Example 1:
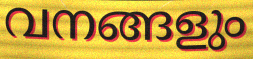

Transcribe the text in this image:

വനങ്ങളും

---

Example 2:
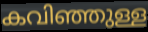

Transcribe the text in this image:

കവിഞ്ഞുള്ള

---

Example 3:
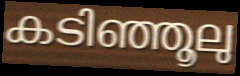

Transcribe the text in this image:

കടിഞ്ഞൂലു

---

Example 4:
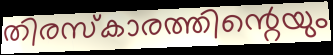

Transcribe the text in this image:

തിരസ്കാരത്തിന്റെയും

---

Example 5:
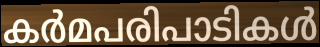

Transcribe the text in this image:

കർമപരിപാടികൾ